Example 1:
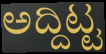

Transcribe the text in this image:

ಅದ್ದಿಟ್ಟ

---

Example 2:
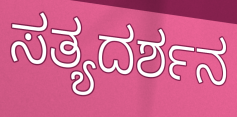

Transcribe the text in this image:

ಸತ್ಯದರ್ಶನ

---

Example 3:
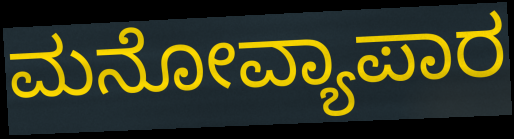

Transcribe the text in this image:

ಮನೋವ್ಯಾಪಾರ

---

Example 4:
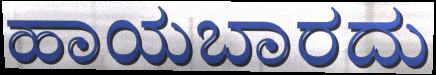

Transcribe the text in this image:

ಹಾಯಬಾರದು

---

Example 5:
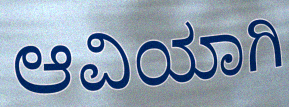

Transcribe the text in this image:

ಆವಿಯಾಗಿ